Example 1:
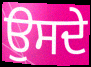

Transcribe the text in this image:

ਉਸਦੇ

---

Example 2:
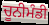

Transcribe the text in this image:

ਚੂਨੀਮੰਡੀ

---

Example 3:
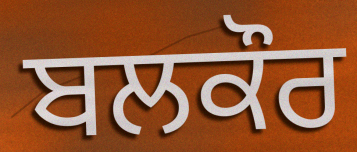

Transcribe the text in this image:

ਬਲਕੌਰ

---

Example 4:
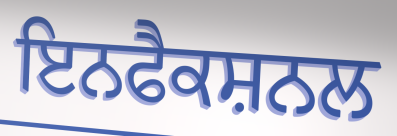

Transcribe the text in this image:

ਇਨਫੈਕਸ਼ਨਲ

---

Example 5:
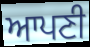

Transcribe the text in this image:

ਆਪਣੀ